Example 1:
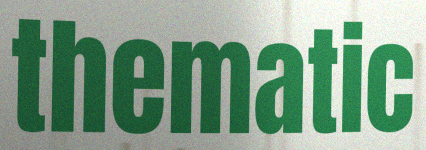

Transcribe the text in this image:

thematic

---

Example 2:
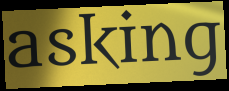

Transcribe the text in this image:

asking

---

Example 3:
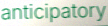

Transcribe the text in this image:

anticipatory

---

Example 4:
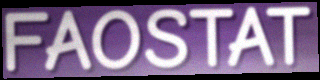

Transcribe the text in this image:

FAOSTAT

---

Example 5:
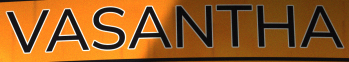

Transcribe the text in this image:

VASANTHA